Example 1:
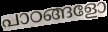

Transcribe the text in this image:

പാഠങ്ങളോ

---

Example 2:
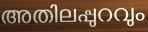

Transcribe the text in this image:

അതിലപ്പുറവും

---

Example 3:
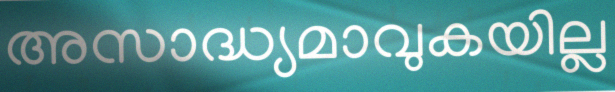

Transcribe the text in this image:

അസാദ്ധ്യമാവുകയില്ല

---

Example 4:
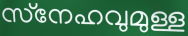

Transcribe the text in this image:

സ്‌നേഹവുമുള്ള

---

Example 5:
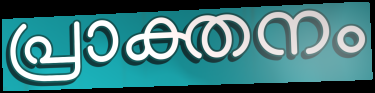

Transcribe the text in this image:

പ്രാക്തനം